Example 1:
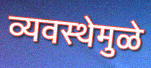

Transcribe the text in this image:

व्यवस्थेमुळे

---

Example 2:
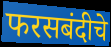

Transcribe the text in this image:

फरसबंदीचे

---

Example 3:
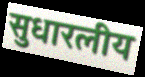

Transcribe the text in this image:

सुधारलीय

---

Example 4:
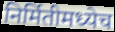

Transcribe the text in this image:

निर्मितीमध्येच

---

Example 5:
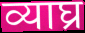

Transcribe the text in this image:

व्याघ्र